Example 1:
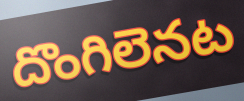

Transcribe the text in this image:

దొంగిలెనట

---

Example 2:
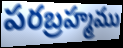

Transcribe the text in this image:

పరబ్రహ్మము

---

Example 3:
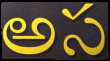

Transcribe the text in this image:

అస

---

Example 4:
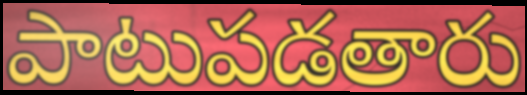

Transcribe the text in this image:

పాటుపడతారు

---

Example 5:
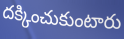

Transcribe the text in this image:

దక్కించుకుంటారు